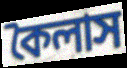
কৈলাস